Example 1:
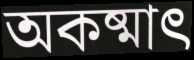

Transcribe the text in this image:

অকষ্মাৎ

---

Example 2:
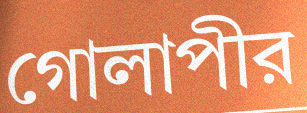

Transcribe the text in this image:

গোলাপীর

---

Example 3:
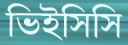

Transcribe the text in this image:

ভিইসিসি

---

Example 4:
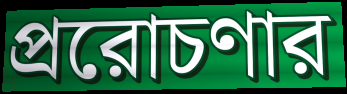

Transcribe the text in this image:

প্ররোচণার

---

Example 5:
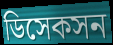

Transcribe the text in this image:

ডিসেকসন